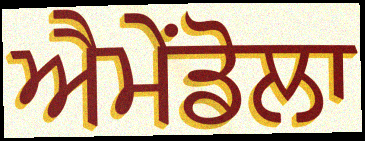
ਐਮੇਂਡੋਲਾ